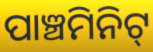
ପାଞ୍ଚମିନିଟ୍